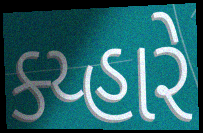
ક્ય્હારે